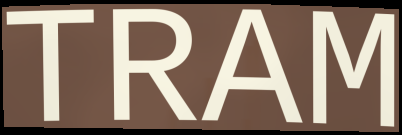
TRAM